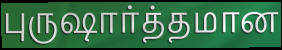
புருஷார்த்தமான